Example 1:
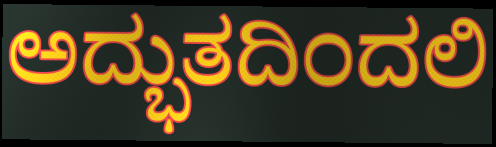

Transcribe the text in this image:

ಅದ್ಭುತದಿಂದಲಿ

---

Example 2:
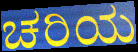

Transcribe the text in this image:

ಚರಿಯ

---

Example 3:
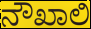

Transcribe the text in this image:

ನೌಖಾಲಿ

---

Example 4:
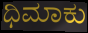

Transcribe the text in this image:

ಧಿಮಾಕು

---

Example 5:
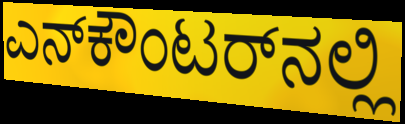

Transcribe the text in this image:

ಎನ್‌ಕೌಂಟರ್‌ನಲ್ಲಿ